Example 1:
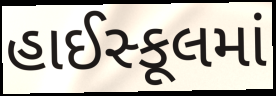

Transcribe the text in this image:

હાઈસ્કૂલમાં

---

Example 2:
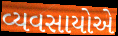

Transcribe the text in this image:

વ્યવસાયોએ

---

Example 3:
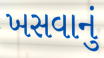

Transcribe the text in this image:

ખસવાનું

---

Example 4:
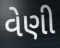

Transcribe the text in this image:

વેણી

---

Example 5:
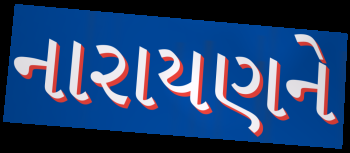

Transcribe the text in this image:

નારાયણને